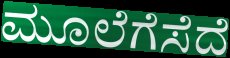
ಮೂಲೆಗೆಸೆದೆ